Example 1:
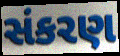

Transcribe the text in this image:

સંકરણ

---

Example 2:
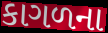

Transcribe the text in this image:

કાગળના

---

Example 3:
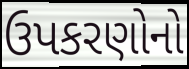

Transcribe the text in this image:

ઉપકરણોનો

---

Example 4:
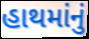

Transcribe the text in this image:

હાથમાંનું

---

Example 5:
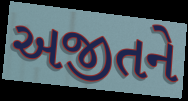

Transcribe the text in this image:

અજીતને